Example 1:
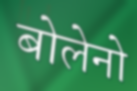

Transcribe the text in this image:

बोलेनो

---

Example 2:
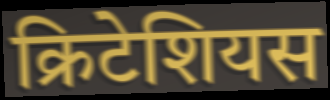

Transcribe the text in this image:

क्रिटेशियस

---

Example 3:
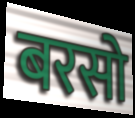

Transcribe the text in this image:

बरसो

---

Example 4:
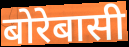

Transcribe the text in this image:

बोरेबासी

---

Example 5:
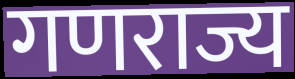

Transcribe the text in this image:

गणराज्य